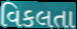
વિકલતા